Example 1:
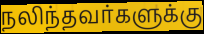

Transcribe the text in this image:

நலிந்தவர்களுக்கு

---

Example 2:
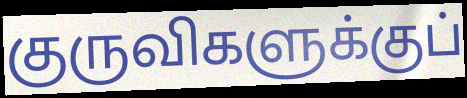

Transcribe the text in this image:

குருவிகளுக்குப்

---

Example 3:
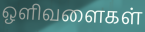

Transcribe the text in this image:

ஒளிவளைகள்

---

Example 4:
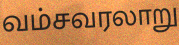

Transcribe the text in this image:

வம்சவரலாறு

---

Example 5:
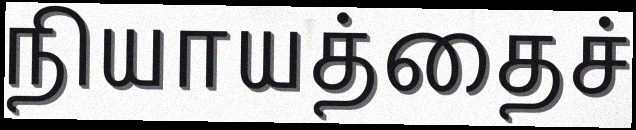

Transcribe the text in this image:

நியாயத்தைச்